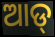
ଆଡ୍